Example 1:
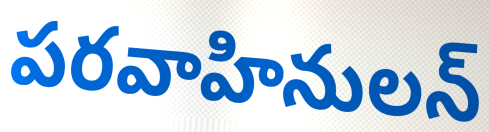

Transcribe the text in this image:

పరవాహినులన్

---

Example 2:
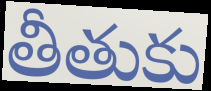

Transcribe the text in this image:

తీతుకు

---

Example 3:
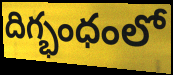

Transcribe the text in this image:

దిగ్భంధంలో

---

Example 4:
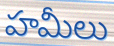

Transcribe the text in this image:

హమీలు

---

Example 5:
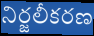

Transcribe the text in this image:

నిర్జలీకరణ